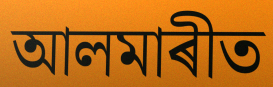
আলমাৰীত